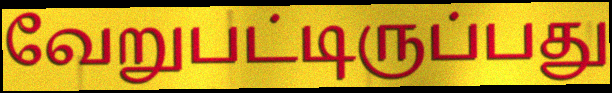
வேறுபட்டிருப்பது